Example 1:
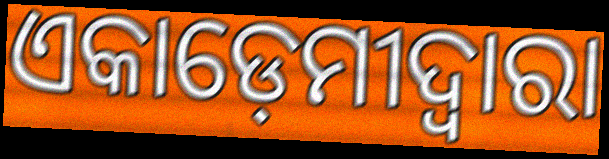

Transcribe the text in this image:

ଏକାଡ଼େମୀଦ୍ଵାରା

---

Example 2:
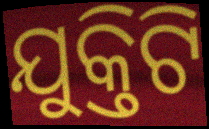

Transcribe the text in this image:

ଯୁକ୍ତିଟି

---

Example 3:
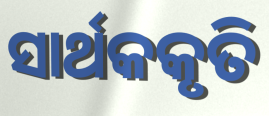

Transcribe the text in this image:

ସାର୍ଥକକୃତି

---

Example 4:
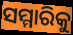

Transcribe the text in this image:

ସମ୍ମାରିକୁ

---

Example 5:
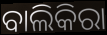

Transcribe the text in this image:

ବାଲିକିରା